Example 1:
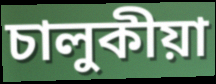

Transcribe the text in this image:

চালুকীয়া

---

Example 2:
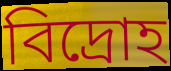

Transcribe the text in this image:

বিদ্ৰোহ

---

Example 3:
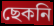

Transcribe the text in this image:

ছেকনি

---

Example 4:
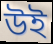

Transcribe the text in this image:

উই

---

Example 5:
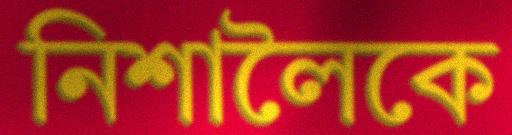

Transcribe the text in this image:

নিশালৈকে